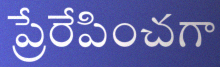
ప్రేరేపించగా